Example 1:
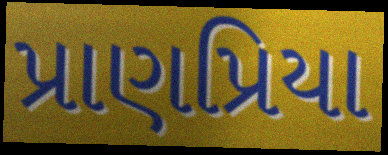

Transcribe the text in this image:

પ્રાણપ્રિયા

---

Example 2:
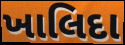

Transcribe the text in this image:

ખાલિદા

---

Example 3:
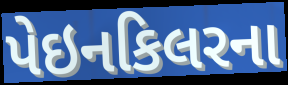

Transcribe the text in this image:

પેઇનકિલરના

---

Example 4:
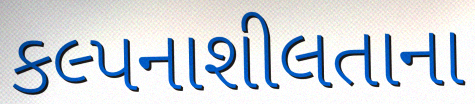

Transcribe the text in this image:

કલ્પનાશીલતાના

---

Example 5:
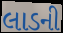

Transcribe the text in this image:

લાડની